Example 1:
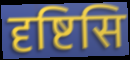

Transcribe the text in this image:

दृष्टिसि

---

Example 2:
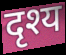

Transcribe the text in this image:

दृश्य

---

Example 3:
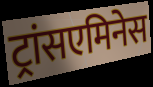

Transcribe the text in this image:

ट्रांसएमिनेस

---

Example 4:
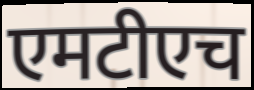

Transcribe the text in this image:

एमटीएच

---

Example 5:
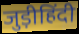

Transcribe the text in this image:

जुड़ीहिंदी